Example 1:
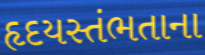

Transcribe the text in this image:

હૃદયસ્તંભતાના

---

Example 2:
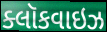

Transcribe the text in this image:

ક્લૉકવાઇઝ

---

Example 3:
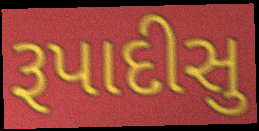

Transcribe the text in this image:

રૂપાદીસુ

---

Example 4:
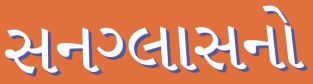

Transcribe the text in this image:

સનગ્લાસનો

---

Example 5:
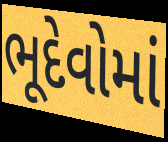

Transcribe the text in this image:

ભૂદેવોમાં